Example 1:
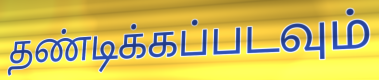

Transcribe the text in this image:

தண்டிக்கப்படவும்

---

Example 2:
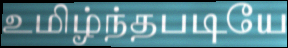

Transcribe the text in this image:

உமிழ்ந்தபடியே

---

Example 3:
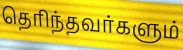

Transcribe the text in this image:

தெரிந்தவர்களும்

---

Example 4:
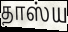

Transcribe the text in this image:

தாஸ்ய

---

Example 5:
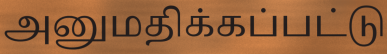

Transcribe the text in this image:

அனுமதிக்கப்பட்டு